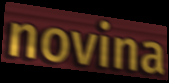
novina